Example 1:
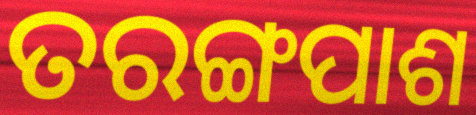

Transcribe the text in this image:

ତରଙ୍ଗପାଶ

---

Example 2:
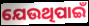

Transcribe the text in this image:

ଯେଉଥିପାଇଁ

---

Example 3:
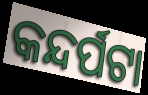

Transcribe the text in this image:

କନ୍ଦର୍ପଟା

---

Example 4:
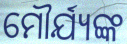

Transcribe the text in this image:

ମୌର୍ଯ୍ୟଙ୍କ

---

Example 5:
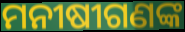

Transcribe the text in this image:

ମନୀଷୀଗଣଙ୍କ